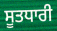
ਸੂਤਧਾਰੀ